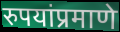
रुपयांप्रमाणे